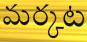
మర్కట